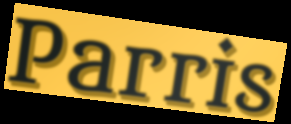
Parris